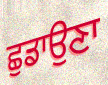
ਛੁਡਾਉਣਾ